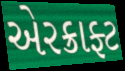
એરક્રાફ્ટ